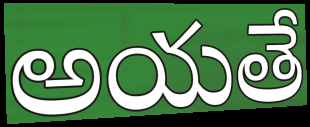
అయతే